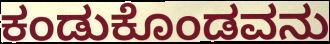
ಕಂಡುಕೊಂಡವನು